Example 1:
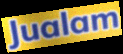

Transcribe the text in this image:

Jualam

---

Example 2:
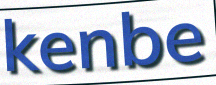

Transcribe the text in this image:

kenbe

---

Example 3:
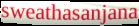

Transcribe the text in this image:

sweathasanjana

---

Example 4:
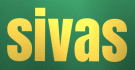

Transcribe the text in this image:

sivas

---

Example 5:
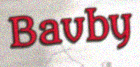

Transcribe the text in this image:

Bauby